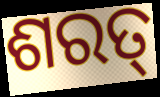
ଶରତ୍